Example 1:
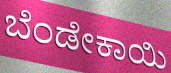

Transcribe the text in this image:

ಬೆಂಡೇಕಾಯಿ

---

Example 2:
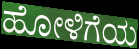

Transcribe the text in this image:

ಹೋಳಿಗೆಯ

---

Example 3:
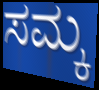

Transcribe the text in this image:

ಸಮ್ಕ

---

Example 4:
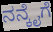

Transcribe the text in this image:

ನನ್ಕೈಗೆ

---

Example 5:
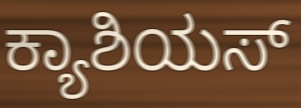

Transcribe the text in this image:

ಕ್ಯಾಶಿಯಸ್